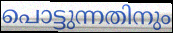
പൊട്ടുന്നതിനും